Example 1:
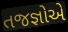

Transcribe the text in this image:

તજજ્ઞોએ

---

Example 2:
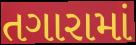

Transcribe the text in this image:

તગારામાં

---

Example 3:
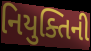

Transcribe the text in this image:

નિયુક્તિની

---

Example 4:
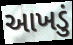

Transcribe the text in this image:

આખડું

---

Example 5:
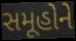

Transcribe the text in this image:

સમૂહોને